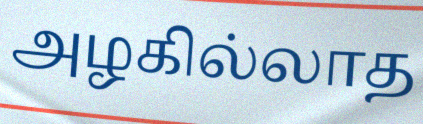
அழகில்லாத